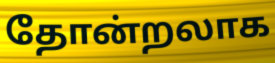
தோன்றலாக